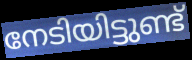
നേടിയിട്ടുണ്ട്